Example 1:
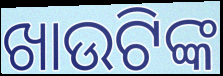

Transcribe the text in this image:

ଖାଉଟିଙ୍କ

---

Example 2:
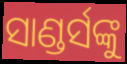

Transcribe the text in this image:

ସାଣ୍ଡର୍ସଙ୍କୁ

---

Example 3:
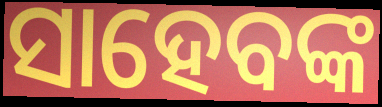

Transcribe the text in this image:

ସାହେବଙ୍କ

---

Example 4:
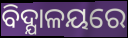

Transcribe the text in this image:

ବିଦ୍ଯାଳୟରେ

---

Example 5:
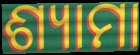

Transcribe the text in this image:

ଶ୍ୟାମା